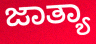
ಜಾತ್ಯಾ